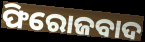
ଫିରୋଜବାଦ